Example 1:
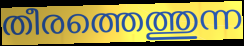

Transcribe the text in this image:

തീരത്തെത്തുന്ന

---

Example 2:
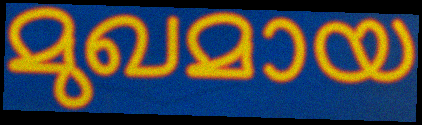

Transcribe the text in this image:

മുഖമായ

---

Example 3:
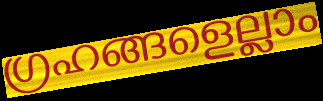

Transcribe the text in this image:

ഗ്രഹങ്ങളെല്ലാം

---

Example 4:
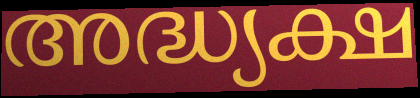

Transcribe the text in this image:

അദ്ധ്യക്ഷ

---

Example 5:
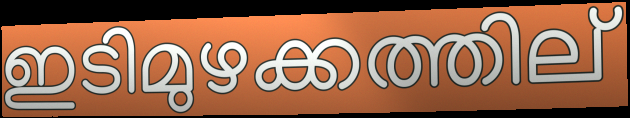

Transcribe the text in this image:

ഇടിമുഴക്കത്തില്